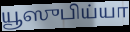
யூஸுபிய்யா